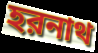
হরনাথ